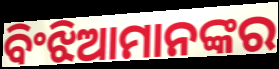
ବିଂଝିଆମାନଙ୍କର